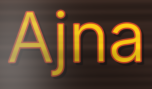
Ajna